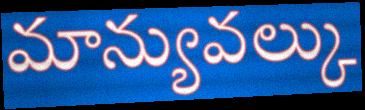
మాన్యువల్కు